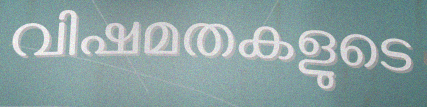
വിഷമതകളുടെ